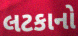
લટકાનો